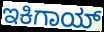
ಇಕಿಗಾಯ್